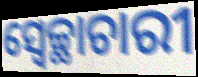
ସ୍ଵେଚ୍ଛାଚାରୀ